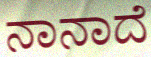
ನಾನಾದೆ